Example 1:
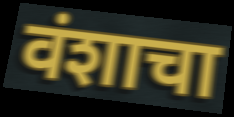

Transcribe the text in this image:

वंशाचा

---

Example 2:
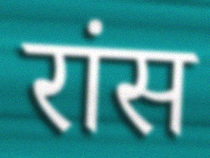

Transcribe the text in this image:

रांस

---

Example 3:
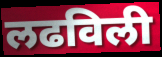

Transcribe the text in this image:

लढविली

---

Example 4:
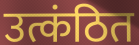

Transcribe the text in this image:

उत्कंठित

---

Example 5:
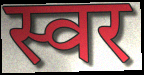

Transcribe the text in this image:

स्वर